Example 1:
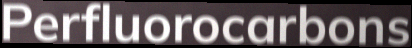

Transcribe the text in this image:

Perfluorocarbons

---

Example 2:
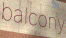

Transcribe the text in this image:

balcony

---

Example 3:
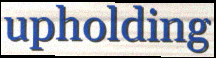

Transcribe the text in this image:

upholding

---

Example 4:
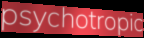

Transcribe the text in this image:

psychotropic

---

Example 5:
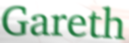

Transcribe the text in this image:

Gareth